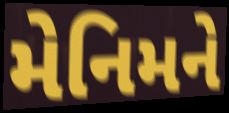
મેનિમને